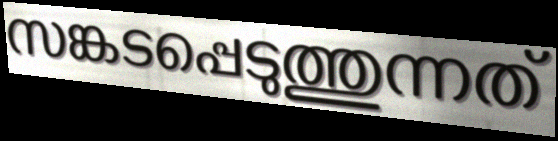
സങ്കടപ്പെടുത്തുന്നത്